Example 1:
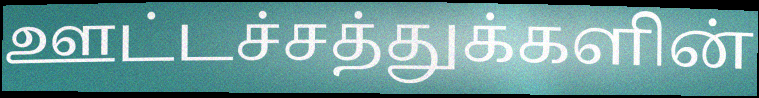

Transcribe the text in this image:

ஊட்டச்சத்துக்களின்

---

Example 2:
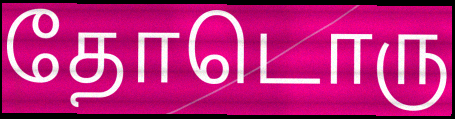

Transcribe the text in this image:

தோடொரு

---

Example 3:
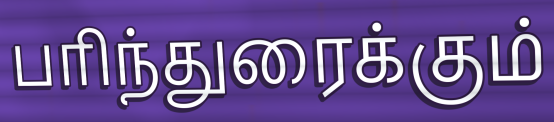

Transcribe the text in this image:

பரிந்துரைக்கும்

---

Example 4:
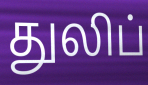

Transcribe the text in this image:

துலிப்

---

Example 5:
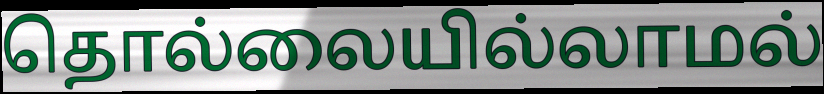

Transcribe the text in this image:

தொல்லையில்லாமல்